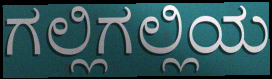
ಗಲ್ಲಿಗಲ್ಲಿಯ